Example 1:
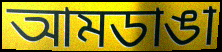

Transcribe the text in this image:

আমডাঙা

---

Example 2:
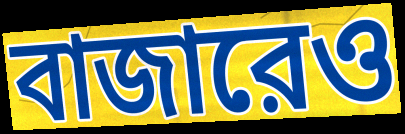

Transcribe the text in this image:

বাজারেও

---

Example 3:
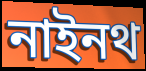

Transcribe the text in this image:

নাইনথ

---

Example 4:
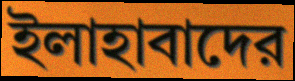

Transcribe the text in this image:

ইলাহাবাদের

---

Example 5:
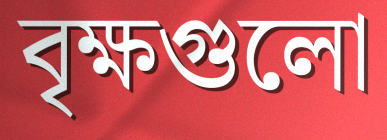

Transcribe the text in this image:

বৃক্ষগুলো